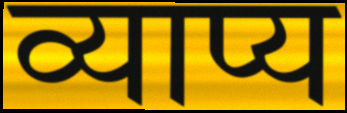
व्याप्य